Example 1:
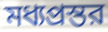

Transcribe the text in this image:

মধ্যপ্রস্তর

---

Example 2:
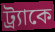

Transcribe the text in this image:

ট্র্যাকে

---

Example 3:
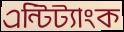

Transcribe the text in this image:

এন্টিট্যাংক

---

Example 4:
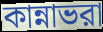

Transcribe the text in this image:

কান্নাভরা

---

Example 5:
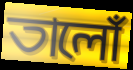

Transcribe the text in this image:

তালোঁ